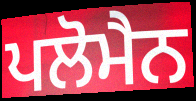
ਪਲੋਮੈਨ